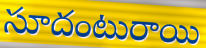
సూదంటురాయి